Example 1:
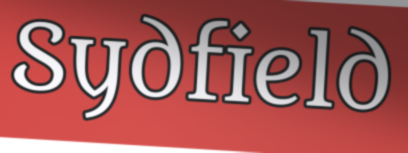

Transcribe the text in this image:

Sydfield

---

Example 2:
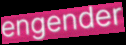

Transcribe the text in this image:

engender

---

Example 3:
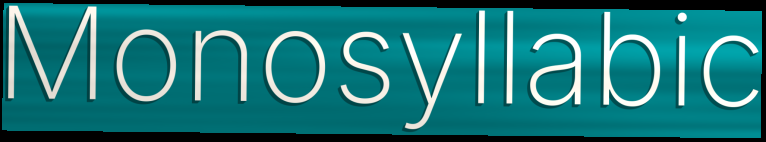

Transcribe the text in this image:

Monosyllabic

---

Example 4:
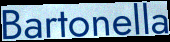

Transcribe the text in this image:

Bartonella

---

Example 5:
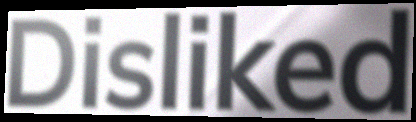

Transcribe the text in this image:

Disliked